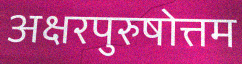
अक्षरपुरुषोत्तम